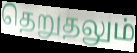
தெறுதலும்